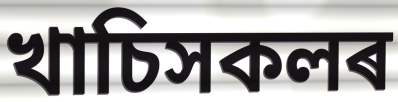
খাচিসকলৰ